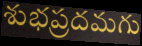
శుభప్రదమగు